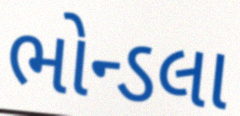
ભોન્ડલા